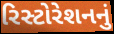
રિસ્ટોરેશનનું